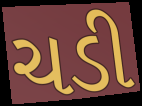
ચડી